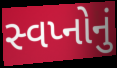
સ્વપ્નોનું